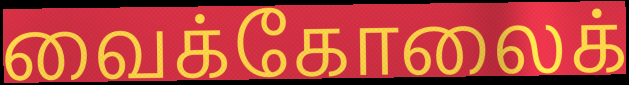
வைக்கோலைக்